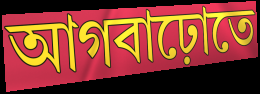
আগবাঢ়োতে